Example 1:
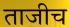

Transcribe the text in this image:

ताजीच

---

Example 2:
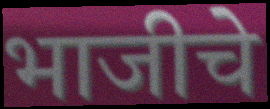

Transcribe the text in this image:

भाजीचे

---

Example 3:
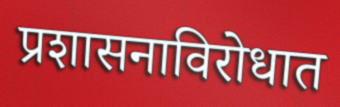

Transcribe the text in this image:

प्रशासनाविरोधात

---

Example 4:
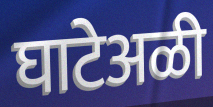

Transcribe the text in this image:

घाटेअळी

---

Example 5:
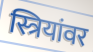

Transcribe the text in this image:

स्त्रियांवर